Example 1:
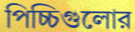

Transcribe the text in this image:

পিচ্চিগুলোর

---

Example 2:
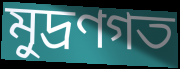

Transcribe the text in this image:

মুদ্রণগত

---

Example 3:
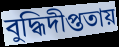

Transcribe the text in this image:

বুদ্ধিদীপ্ততায়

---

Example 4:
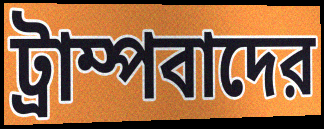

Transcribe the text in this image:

ট্রাম্পবাদের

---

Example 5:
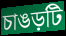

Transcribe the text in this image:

চাঙড়টি